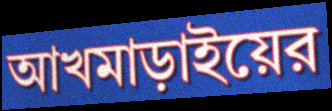
আখমাড়াইয়ের